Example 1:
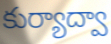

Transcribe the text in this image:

కుర్యాద్వా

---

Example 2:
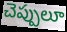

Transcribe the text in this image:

చెప్పులూ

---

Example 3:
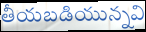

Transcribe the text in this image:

తీయబడియున్నవి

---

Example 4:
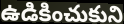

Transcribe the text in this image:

ఉడికించుకుని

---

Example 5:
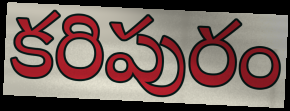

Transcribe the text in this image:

కరిపురం